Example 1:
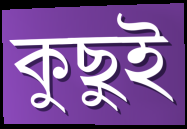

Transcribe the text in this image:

কুছুই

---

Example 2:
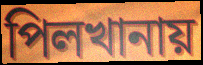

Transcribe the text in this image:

পিলখানায়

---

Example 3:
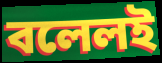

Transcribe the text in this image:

বলেলই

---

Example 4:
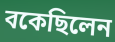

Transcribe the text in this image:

বকেছিলেন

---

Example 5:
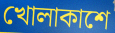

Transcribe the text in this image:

খোলাকাশে